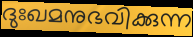
ദുഃഖമനുഭവിക്കുന്ന